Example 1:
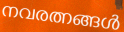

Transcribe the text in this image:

നവരത്നങ്ങൾ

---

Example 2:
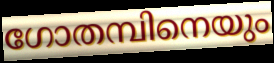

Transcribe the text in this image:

ഗോതമ്പിനെയും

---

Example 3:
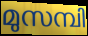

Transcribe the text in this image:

മുസമ്പി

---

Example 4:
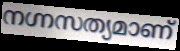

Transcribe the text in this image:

നഗ്നസത്യമാണ്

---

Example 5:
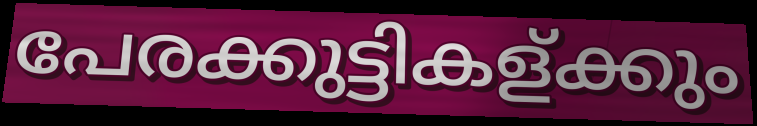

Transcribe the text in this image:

പേരക്കുട്ടികള്ക്കും